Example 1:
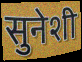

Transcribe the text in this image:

सुनेशी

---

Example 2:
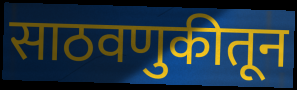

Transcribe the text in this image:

साठवणुकीतून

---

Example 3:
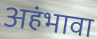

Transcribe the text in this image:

अहंभावा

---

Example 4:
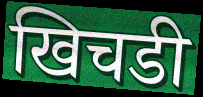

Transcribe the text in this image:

खिचडी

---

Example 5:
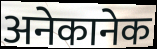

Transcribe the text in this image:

अनेकानेक